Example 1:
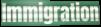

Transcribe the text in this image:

Immigration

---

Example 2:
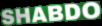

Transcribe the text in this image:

SHABDO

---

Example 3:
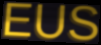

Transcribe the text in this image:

EUS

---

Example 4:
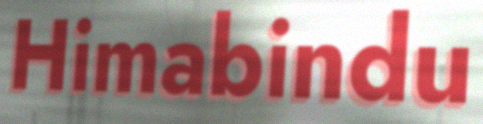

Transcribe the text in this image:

Himabindu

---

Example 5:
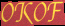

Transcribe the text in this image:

OKOF